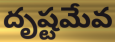
దృష్టమేవ